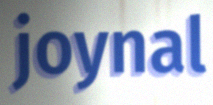
joynal